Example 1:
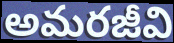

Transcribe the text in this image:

అమరజీవి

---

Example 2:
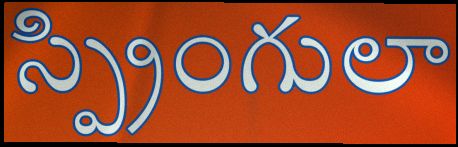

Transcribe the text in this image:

స్ప్రింగులా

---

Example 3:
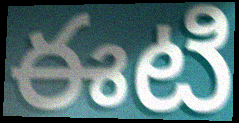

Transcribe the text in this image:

ఈటి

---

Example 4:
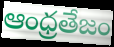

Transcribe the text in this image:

ఆంధ్రతేజం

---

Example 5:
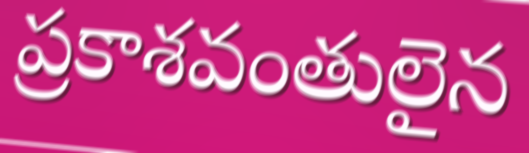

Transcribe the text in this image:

ప్రకాశవంతులైన